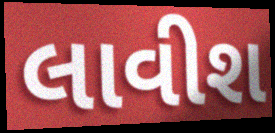
લાવીશ